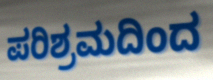
ಪರಿಶ್ರಮದಿಂದ